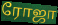
ரோஜா